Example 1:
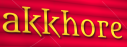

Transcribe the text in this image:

akkhore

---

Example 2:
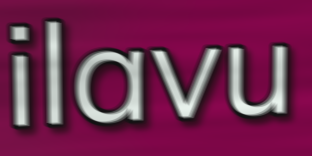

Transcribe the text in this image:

ilavu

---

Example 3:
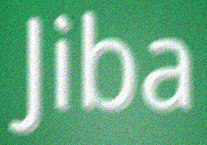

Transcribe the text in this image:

Jiba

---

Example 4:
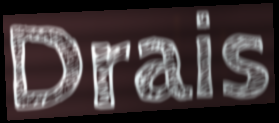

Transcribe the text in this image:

Drais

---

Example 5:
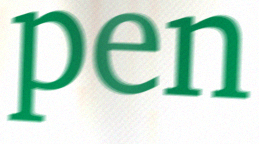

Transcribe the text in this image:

pen